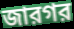
জারগর